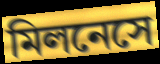
মিলনেসে